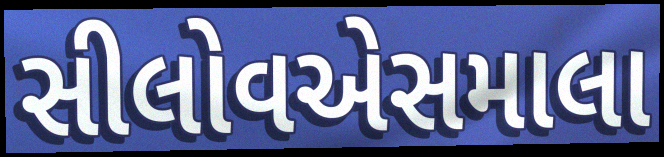
સીલોવએસમાલા